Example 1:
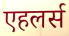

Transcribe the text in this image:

एहलर्स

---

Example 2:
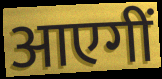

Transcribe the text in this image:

आएगीं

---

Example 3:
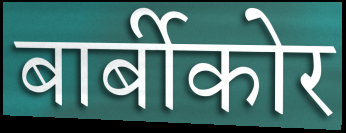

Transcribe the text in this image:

बार्बीकोर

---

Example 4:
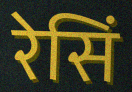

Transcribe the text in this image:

रेसिं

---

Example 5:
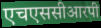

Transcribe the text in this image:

एचएससीआरपी